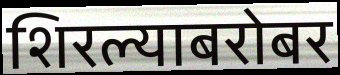
शिरल्याबरोबर